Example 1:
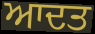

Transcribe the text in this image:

ਆਦਤ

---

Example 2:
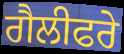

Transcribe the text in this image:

ਗੈਲੀਫਰੇ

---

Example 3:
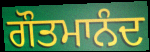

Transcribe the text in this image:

ਗੌਤਮਾਨੰਦ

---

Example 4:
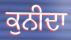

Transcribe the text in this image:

ਕੁਨੀਦਾ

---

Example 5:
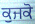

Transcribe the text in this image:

ਕੁਜਕੋ